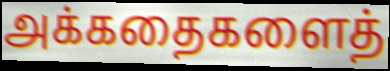
அக்கதைகளைத்